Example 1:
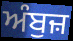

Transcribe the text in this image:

ਅੰਬੁਜ਼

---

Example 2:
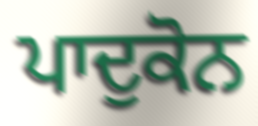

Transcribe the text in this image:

ਪਾਦੁਕੋਨ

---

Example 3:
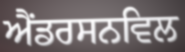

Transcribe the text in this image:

ਐਂਡਰਸਨਵਿਲ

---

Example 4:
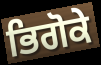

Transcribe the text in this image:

ਭਿਗੋਕੇ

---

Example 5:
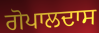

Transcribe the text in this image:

ਗੋਪਾਲਦਾਸ